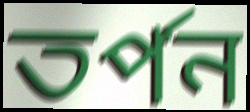
তর্পন